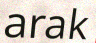
arak